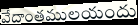
వేదాంతములయందు